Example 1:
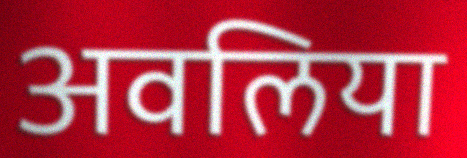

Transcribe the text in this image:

अवलिया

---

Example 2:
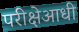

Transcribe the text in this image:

परीक्षेआधी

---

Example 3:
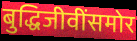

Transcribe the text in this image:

बुद्धिजीवींसमोर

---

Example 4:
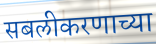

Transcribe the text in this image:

सबलीकरणाच्या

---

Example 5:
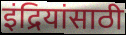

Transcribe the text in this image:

इंद्रियांसाठी